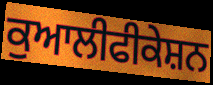
ਕੁਆਲੀਫੀਕੇਸ਼ਨ